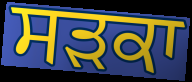
ਸੜਕਾ